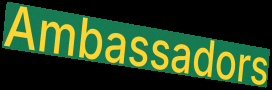
Ambassadors